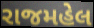
રાજમહેલ